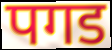
पगड